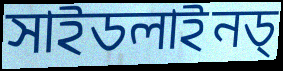
সাইডলাইনড্